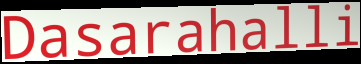
Dasarahalli